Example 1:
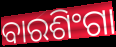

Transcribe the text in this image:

ବାରଶିଂଗା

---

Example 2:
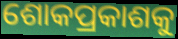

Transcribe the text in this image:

ଶୋକପ୍ରକାଶକୁ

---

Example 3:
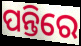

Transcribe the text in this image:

ପନ୍ତିରେ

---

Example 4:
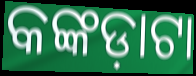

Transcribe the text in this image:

କଙ୍କଡ଼ାଟା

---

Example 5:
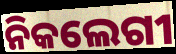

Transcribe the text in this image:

ନିକଲେଗୀ